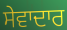
ਸੇਵਾਦਾਰ